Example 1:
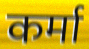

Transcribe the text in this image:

कर्मा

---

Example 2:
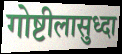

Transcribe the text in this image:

गोष्टीलासुध्दा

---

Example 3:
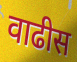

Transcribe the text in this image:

वाढीस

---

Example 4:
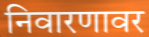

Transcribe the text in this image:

निवारणावर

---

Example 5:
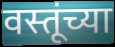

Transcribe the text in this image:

वस्तूंच्या